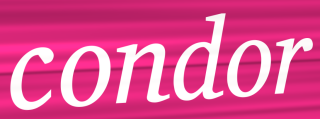
condor